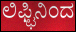
ಲಿಫ್ಟಿನಿಂದ